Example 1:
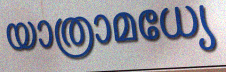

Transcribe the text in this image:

യാത്രാമധ്യേ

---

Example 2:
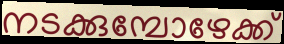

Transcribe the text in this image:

നടക്കുമ്പോഴേക്ക്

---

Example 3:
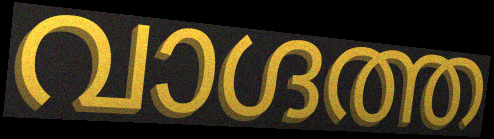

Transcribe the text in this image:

വാഗ്ദത്ത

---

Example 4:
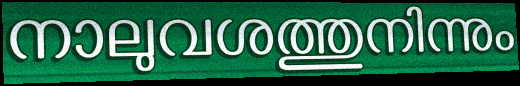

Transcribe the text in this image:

നാലുവശത്തുനിന്നും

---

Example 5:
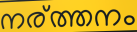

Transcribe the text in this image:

നര്ത്തനം